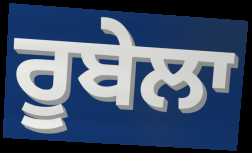
ਰੂਬੇਲਾ